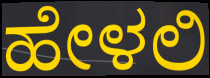
ಹೇಳಲಿ